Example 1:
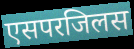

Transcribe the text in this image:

एसपरजिलस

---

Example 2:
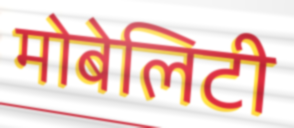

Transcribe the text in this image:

मोबेलिटी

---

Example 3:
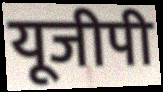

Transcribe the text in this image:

यूजीपी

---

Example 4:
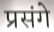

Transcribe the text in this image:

प्रसंगे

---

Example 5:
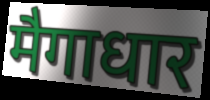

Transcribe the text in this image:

मैगाधार